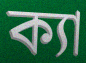
ক্যা